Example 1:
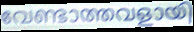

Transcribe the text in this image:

വേണ്ടാത്തവളായി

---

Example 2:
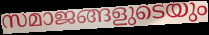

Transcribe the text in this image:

സമാജങ്ങളുടെയും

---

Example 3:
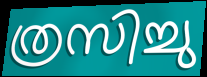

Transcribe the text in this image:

ത്രസിച്ചു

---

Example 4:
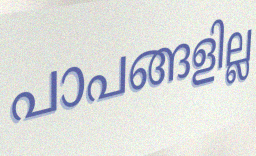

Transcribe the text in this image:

പാപങ്ങളില്ല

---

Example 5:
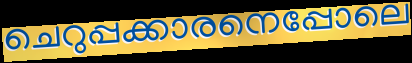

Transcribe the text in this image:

ചെറുപ്പക്കാരനെപ്പോലെ